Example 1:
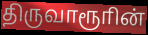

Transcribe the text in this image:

திருவாரூரின்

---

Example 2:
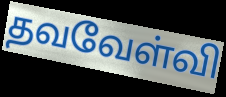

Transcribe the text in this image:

தவவேள்வி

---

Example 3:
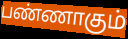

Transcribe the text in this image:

பண்ணாகும்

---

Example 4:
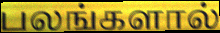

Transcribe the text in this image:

பலங்களால்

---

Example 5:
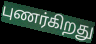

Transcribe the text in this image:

புணர்கிறது